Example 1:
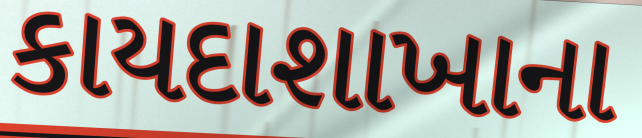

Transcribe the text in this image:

કાયદાશાખાના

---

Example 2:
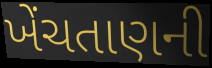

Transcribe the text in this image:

ખેંચતાણની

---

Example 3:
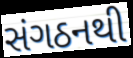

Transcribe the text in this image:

સંગઠનથી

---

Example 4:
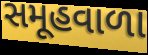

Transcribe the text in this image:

સમૂહવાળા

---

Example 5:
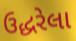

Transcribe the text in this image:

ઉદ્ધરેલા